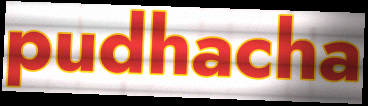
pudhacha